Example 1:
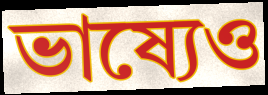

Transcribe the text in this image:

ভাষ্যেও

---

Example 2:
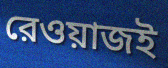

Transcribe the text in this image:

রেওয়াজই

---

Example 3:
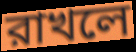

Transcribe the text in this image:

রাখলে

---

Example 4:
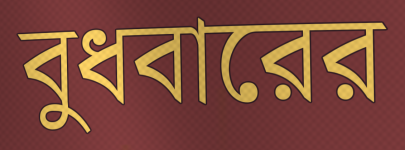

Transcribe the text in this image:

বুধবারের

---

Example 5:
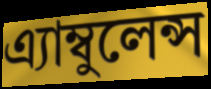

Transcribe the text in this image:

এ্যাম্বুলেন্স